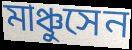
মাঞ্চুসেন